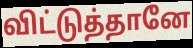
விட்டுத்தானே